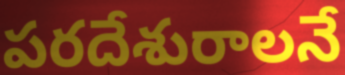
పరదేశురాలనే